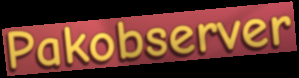
Pakobserver